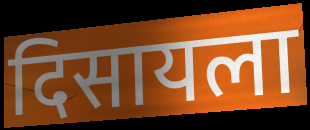
दिसायला